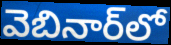
వెబినార్‌లో